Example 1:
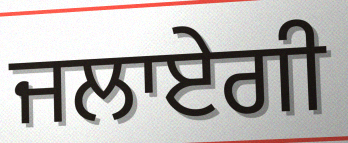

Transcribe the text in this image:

ਜਲਾਏਗੀ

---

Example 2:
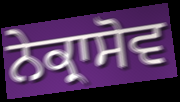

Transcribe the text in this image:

ਨੇਕ੍ਰਾਸੋਵ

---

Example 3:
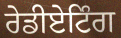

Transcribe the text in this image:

ਰੇਡੀਏਟਿੰਗ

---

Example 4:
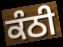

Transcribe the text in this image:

ਕੰਠੀ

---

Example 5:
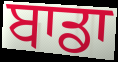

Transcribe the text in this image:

ਬਾਡਾ